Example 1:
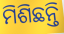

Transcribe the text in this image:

ମିଶିଛନ୍ତି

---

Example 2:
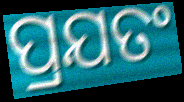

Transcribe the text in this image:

ପ୍ରଯତଂ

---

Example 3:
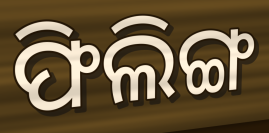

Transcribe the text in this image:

ଫିଲିଙ୍ଗ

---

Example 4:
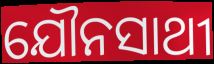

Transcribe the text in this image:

ଯୌନସାଥୀ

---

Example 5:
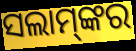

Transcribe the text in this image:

ସଲାମ୍‌ଙ୍କର